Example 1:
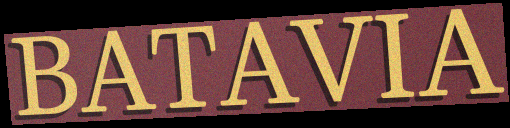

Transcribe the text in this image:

BATAVIA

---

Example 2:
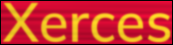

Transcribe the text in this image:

Xerces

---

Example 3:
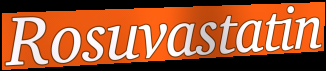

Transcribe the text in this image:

Rosuvastatin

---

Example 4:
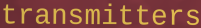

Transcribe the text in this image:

transmitters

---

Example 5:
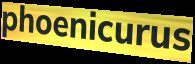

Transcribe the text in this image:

phoenicurus